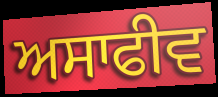
ਅਸਾਫੀਵ